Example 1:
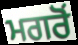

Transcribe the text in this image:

ਮਗਰੋਂ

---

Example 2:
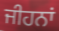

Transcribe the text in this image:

ਜੀਹਨਾਂ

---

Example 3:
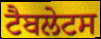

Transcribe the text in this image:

ਟੈਬਲੇਟਸ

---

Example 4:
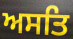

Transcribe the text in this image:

ਅਸਤਿ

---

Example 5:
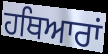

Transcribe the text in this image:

ਹਥਿਆਰਾਂ